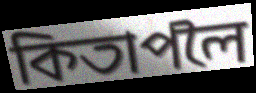
কিতাপলৈ